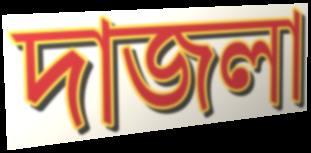
দাজলা